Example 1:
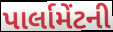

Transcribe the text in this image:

પાર્લામેંટની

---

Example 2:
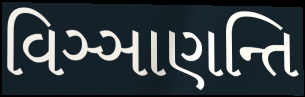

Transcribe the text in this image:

વિઞ્ઞાણન્તિ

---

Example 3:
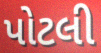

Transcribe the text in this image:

પોટલી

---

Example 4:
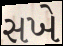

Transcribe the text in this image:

સખે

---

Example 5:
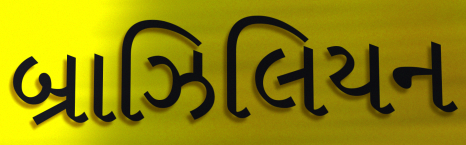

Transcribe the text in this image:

બ્રાઝિલિયન